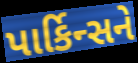
પાર્કિન્સને